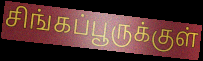
சிங்கப்பூருக்குள்